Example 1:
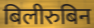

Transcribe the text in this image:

बिलीरुबिन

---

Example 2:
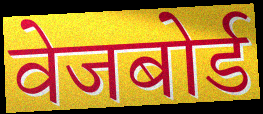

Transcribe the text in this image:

वेजबोर्ड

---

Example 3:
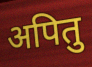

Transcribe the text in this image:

अपितु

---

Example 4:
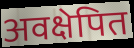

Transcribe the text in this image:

अवक्षेपित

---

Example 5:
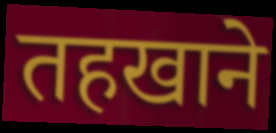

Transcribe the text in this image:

तहखाने